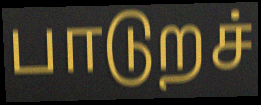
பாடுறச்